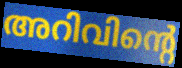
അറിവിന്റെ